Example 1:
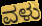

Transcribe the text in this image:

ವಳು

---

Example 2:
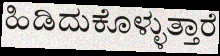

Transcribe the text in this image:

ಹಿಡಿದುಕೊಳ್ಳುತ್ತಾರೆ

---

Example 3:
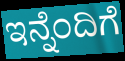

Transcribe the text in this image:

ಇನ್ನೆಂದಿಗೆ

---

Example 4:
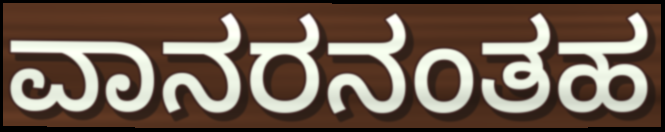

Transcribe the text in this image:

ವಾನರನಂತಹ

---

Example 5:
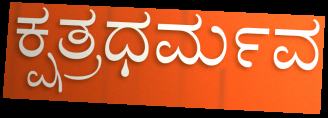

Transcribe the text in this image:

ಕ್ಷತ್ರಧರ್ಮವ